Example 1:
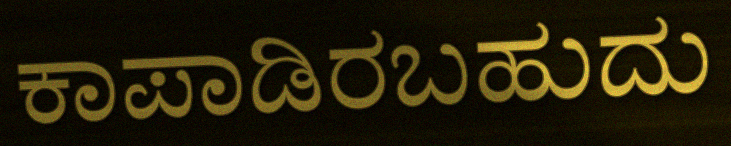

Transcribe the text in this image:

ಕಾಪಾಡಿರಬಹುದು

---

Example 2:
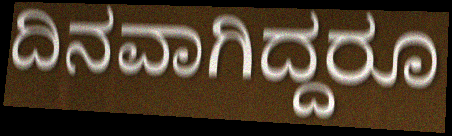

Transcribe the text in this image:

ದಿನವಾಗಿದ್ದರೂ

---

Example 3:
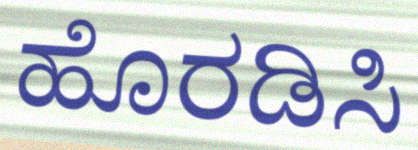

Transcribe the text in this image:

ಹೊರಡಿಸಿ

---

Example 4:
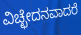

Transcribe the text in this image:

ವಿಚ್ಛೇದನವಾದರೆ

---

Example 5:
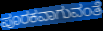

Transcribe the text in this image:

ಪೂರಕವಾಗುವಂತೆ